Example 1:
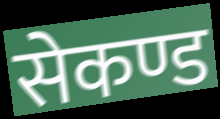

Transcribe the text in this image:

सेकण्ड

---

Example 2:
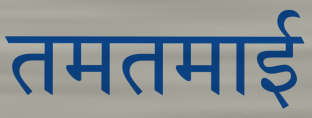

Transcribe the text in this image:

तमतमाई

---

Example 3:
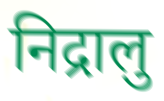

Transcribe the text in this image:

निद्रालु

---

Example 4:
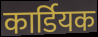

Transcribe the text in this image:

कार्डियक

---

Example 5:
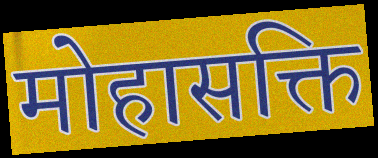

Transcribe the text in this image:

मोहासक्ति